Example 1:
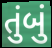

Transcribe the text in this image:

તુંબું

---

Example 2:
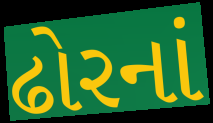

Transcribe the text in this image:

ઢોરનાં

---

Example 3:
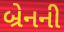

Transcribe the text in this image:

બ્રેનની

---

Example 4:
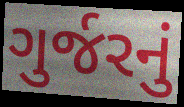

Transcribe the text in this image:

ગુર્જરનું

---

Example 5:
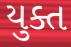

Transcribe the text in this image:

યુક્ત